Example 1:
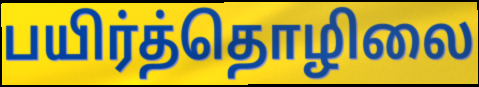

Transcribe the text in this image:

பயிர்த்தொழிலை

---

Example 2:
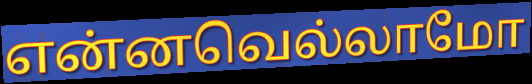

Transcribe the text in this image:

என்னவெல்லாமோ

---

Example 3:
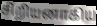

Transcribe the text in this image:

சிறியனாகிய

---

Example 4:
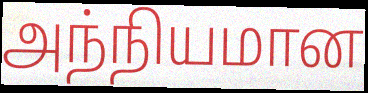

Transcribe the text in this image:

அந்நியமான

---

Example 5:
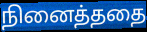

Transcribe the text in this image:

நினைத்ததை